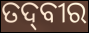
ତଦ୍‌ବୀର